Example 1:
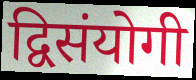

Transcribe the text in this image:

द्विसंयोगी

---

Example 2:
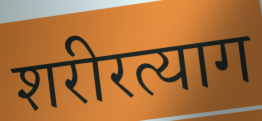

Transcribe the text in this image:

शरीरत्याग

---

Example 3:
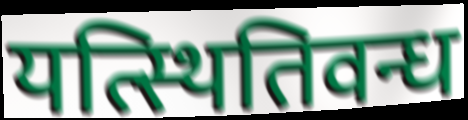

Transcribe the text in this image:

यत्स्थितिवन्ध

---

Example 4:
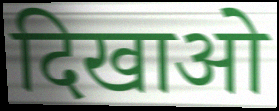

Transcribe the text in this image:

दिखाओ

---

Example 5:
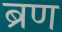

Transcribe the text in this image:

ब्रण